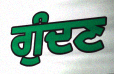
ਗੁੰਦਣ